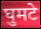
घुमटे